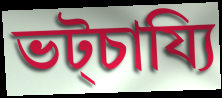
ভট্চায্যি